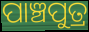
ପାଞ୍ଚପୁତ୍ର